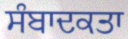
ਸੰਬਾਦਕਤਾ